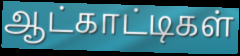
ஆட்காட்டிகள்